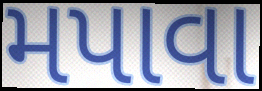
મપાવા